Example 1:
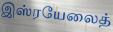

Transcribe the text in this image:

இஸ்ரயேலைத்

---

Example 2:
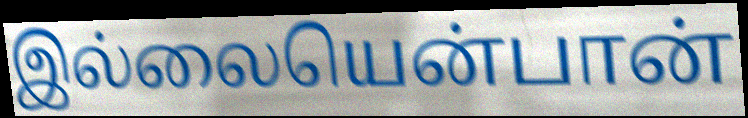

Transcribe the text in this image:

இல்லையென்பான்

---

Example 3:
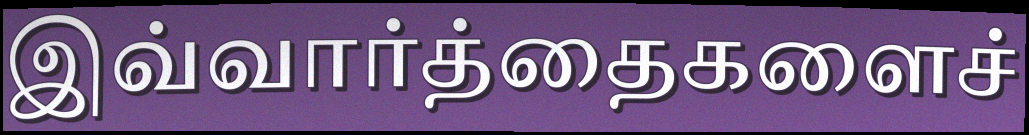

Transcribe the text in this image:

இவ்வார்த்தைகளைச்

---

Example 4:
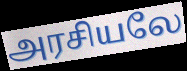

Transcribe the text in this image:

அரசியலே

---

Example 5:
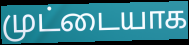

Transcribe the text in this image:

முட்டையாக